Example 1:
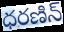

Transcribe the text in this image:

ధరణిన్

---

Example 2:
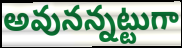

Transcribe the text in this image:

అవునన్నట్టుగా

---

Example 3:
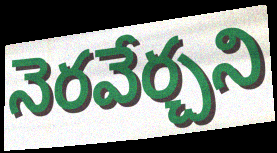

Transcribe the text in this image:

నెరవేర్చని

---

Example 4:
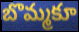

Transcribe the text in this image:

బొమ్మకూ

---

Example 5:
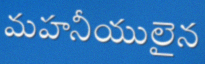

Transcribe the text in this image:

మహనీయులైన